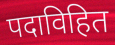
पदाविहित